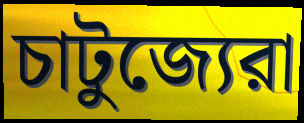
চাটুজ্যেরা